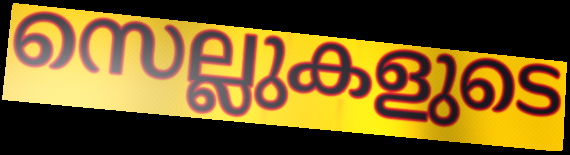
സെല്ലുകളുടെ